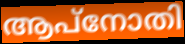
ആപ്നോതി